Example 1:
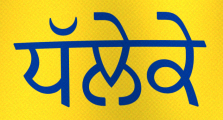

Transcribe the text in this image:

ਧੱਲੇਕੇ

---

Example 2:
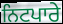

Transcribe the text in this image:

ਨਿਟਪਾਰੇ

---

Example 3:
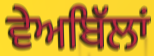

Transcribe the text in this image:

ਵੇਅਬਿੱਲਾਂ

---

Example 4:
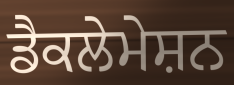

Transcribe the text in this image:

ਡੈਕਲੇਮੇਸ਼ਨ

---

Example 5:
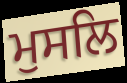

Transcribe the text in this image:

ਮੁਸਲਿ